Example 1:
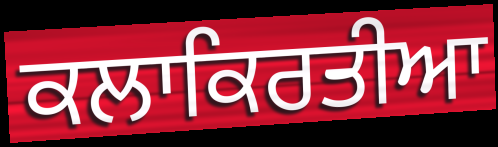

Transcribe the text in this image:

ਕਲਾਕਿਰਤੀਆ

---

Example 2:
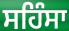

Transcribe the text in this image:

ਸਹਿੰਸਾ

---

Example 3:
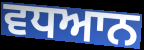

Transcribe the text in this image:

ਵਧਆਨ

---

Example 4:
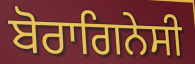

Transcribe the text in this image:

ਬੋਰਾਗਿਨੇਸੀ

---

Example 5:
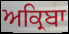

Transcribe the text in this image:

ਅਕ੍ਰਿਬਾ